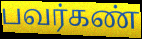
பவர்கண்